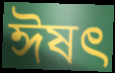
ঈষত্‍